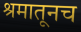
श्रमातूनच